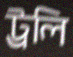
ট্রলি